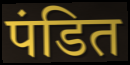
पंडित